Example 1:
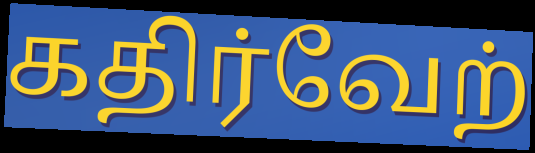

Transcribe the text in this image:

கதிர்வேற்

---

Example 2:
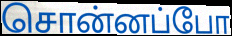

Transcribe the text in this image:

சொன்னப்போ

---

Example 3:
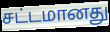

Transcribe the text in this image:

சட்டமானது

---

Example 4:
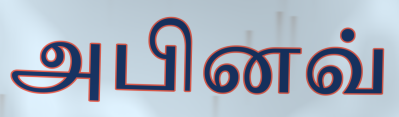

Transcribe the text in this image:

அபினவ்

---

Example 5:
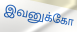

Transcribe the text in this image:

இவனுக்கோ